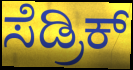
ಸೆಡ್ರಿಕ್